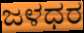
ಜಳಧರ